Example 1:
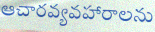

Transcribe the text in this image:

ఆచారవ్యవహారాలను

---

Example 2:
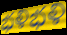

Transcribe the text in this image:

భళిభళి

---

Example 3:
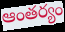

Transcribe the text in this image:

ఆంతర్యం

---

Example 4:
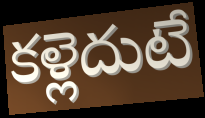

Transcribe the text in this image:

కళ్లెదుటే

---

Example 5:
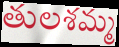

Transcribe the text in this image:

తులశమ్మ